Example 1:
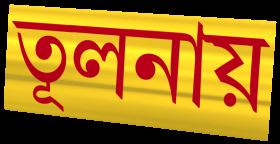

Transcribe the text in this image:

তূলনায়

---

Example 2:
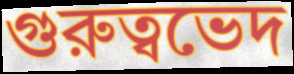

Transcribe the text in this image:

গুরুত্বভেদ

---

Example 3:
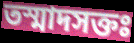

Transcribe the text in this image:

তস্মাদসক্তঃ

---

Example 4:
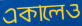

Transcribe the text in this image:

একালেও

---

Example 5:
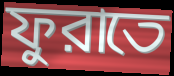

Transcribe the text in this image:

ফুরাতে